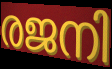
രജനി